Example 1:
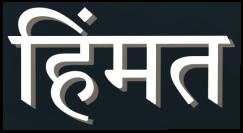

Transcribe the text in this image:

हिंमत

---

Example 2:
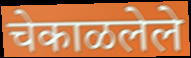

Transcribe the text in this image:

चेकाळलेले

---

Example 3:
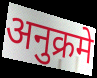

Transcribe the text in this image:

अनुक्रमे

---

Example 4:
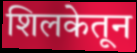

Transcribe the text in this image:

शिलकेतून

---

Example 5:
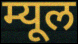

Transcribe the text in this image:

म्यूल